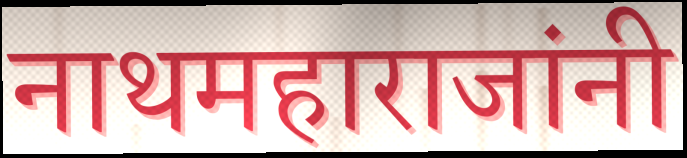
नाथमहाराजांनी